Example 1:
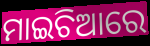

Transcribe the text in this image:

ମାଇଚିଆରେ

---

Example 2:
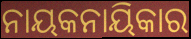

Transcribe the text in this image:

ନାୟକନାୟିକାର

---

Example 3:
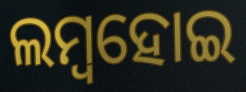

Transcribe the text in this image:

ଲମ୍ୱହୋଇ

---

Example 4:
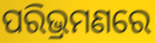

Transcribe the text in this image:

ପରିଭ୍ରମଣରେ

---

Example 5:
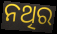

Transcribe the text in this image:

ନଥିର